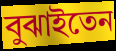
বুঝাইতেন